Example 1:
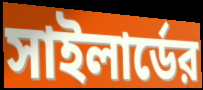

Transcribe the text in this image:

সাইলার্ডের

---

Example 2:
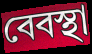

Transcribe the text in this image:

বেবস্থা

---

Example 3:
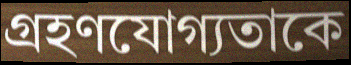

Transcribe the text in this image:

গ্রহণযোগ্যতাকে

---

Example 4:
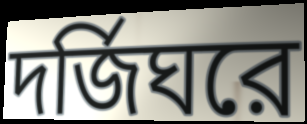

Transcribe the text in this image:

দর্জিঘরে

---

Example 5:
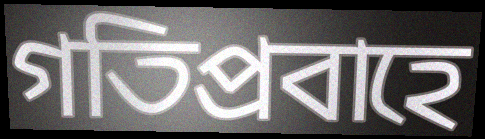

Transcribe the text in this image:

গতিপ্রবাহে